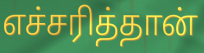
எச்சரித்தான்